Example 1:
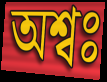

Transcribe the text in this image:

অশ্বঃ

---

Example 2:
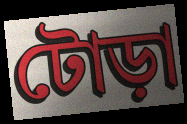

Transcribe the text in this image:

টোড়া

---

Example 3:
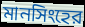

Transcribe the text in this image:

মানসিংহের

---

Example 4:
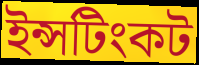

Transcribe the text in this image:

ইন্সটিংকট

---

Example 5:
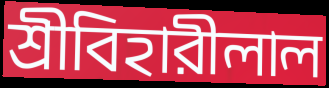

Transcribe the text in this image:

শ্রীবিহারীলাল